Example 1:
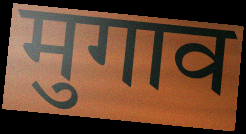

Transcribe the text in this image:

मुगाव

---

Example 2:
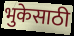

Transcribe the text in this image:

भुकेसाठी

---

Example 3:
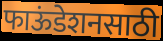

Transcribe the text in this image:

फाऊंडेशनसाठी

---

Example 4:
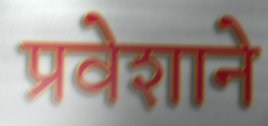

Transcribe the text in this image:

प्रवेशाने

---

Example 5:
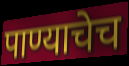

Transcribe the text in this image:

पाण्याचेच